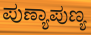
ಪುಣ್ಯಾಪುಣ್ಯ